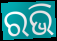
ରଭି